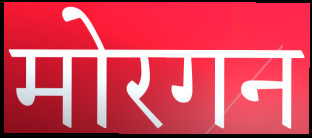
मोरगन